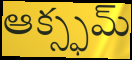
ఆక్స్ఫమ్